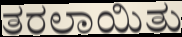
ತರಲಾಯಿತು